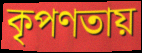
কৃপণতায়